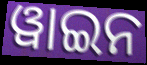
ୱାଇନ